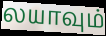
லயாவும்